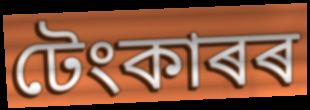
টেংকাৰৰ